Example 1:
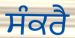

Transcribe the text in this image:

ਸੰਕਰੈ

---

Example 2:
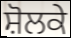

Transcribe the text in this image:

ਸ਼ੋਲਕੇ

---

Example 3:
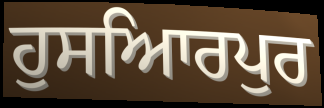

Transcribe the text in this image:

ਹੁਸਆਿਰਪੁਰ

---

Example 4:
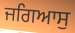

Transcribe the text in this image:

ਜਗਿਆਸੁ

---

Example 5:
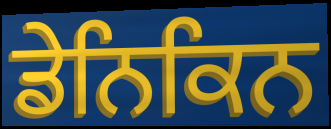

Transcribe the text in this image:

ਡੇਨਿਕਿਨ